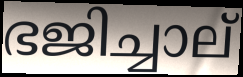
ഭജിച്ചാല്